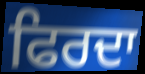
ਫਿਰਦਾ